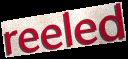
reeled